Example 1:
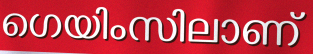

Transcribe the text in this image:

ഗെയിംസിലാണ്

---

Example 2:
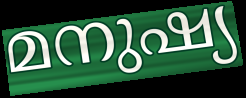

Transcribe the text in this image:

മനുഷ്യ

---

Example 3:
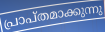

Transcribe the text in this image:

പ്രാപ്തമാക്കുന്നു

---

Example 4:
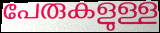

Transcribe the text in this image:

പേരുകളുള്ള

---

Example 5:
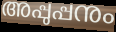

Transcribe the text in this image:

അപ്പുപ്പനും